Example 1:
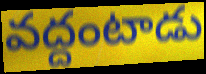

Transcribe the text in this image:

వద్దంటాడు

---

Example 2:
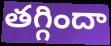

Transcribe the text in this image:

తగ్గిందా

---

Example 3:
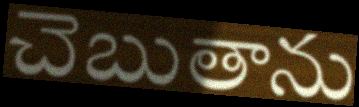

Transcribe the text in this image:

చెబుతాను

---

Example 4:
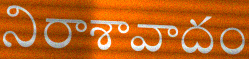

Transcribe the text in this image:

నిరాశావాదం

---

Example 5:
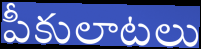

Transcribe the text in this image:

పీకులాటలు